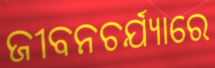
ଜୀବନଚର୍ଯ୍ୟାରେ